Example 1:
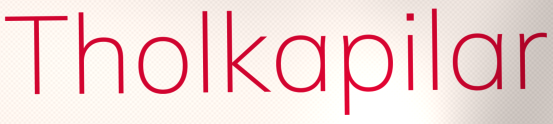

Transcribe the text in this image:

Tholkapilar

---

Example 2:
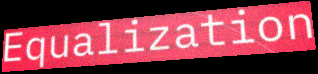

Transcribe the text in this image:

Equalization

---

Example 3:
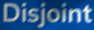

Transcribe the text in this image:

Disjoint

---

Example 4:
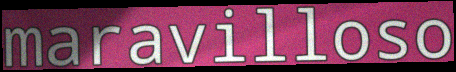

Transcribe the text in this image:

maravilloso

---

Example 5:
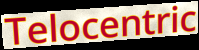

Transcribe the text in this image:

Telocentric